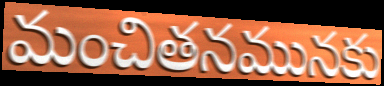
మంచితనమునకు